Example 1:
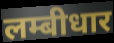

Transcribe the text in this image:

लम्बीधार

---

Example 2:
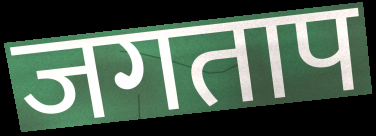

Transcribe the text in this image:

जगताप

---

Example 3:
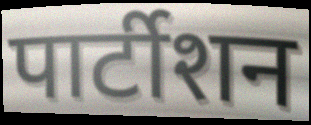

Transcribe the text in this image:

पार्टीशन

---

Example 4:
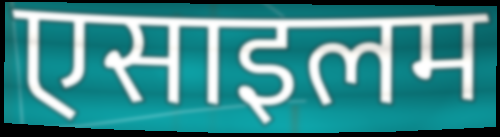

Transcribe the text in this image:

एसाइलम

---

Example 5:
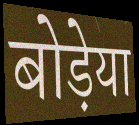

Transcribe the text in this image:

बोड़ेया